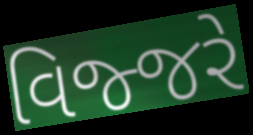
વિજ્જરે